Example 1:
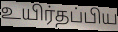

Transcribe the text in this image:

உயிர்தப்பிய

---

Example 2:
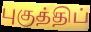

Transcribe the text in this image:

புகுத்திப்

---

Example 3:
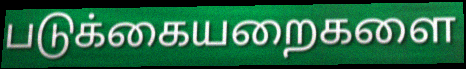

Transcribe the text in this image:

படுக்கையறைகளை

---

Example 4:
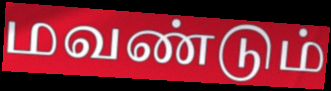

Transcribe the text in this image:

மவண்டும்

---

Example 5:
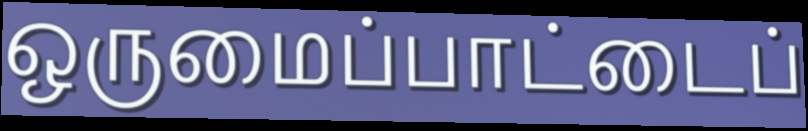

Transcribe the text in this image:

ஒருமைப்பாட்டைப்